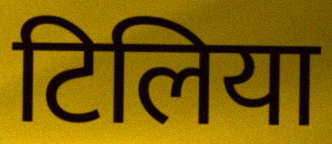
टिलिया